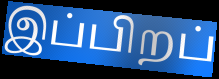
இப்பிறப்